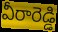
వీరారెడ్డి